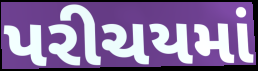
પરીચયમાં